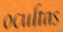
ocultas